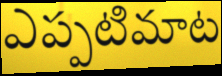
ఎప్పటిమాట